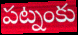
పట్నంకు